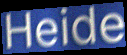
Heide